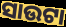
ସାଉଟା